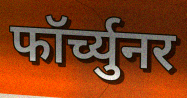
फॉर्च्युनर